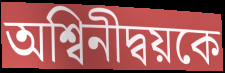
অশ্বিনীদ্বয়কে